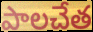
పాలచేత